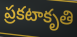
ప్రకటాకృతి